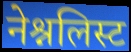
नेश्नलिस्ट